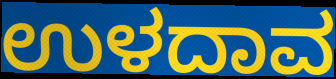
ಉಳದಾವ